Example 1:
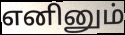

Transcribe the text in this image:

எனினும்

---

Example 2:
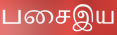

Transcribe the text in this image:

பசைஇய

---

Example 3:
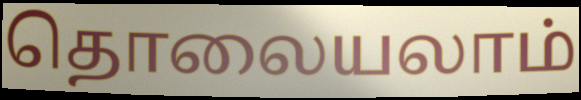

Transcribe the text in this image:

தொலையலாம்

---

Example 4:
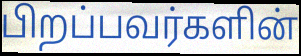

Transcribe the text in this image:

பிறப்பவர்களின்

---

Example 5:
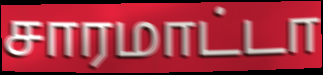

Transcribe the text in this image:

சாரமாட்டா